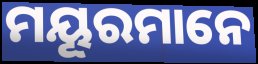
ମୟୂରମାନେ